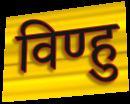
विण्हु